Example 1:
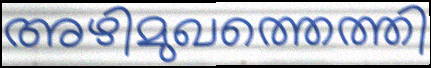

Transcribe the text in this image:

അഴിമുഖത്തെത്തി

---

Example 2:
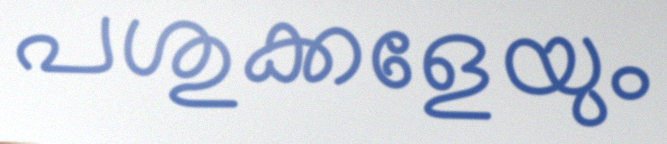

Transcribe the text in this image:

പശുക്കളേയും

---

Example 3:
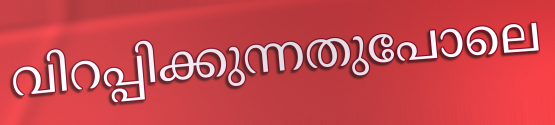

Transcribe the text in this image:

വിറപ്പിക്കുന്നതുപോലെ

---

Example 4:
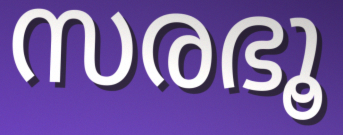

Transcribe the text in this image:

സരഭൂ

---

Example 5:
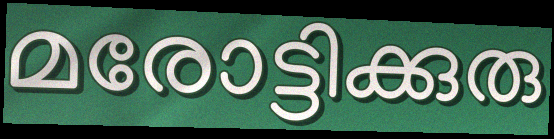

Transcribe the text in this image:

മരോട്ടിക്കുരു